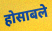
होसाबले